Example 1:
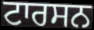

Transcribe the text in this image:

ਟਾਰਸਨ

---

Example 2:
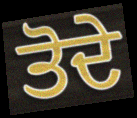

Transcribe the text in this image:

ਤੋਦੇ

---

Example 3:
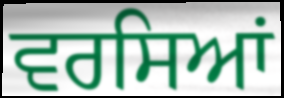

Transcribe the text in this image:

ਵਰਸਿਆਂ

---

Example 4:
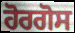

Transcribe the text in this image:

ਹੋਰਗੋਸ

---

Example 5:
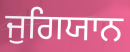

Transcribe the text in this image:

ਜੁਗਿਯਾਨ